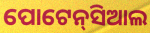
ପୋଟେନ୍‌ସିଆଲ